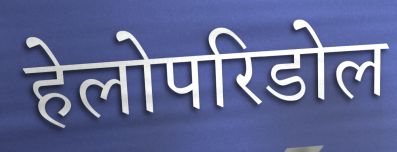
हेलोपरिडोल